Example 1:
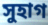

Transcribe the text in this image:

সুহাগ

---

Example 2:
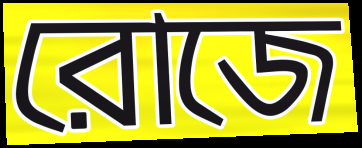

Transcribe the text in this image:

রোজে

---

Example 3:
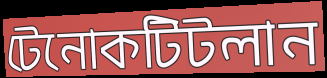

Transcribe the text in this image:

টেনোকটিটলান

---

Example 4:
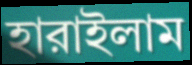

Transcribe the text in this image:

হারাইলাম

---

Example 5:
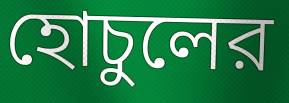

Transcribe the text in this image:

হোচুলের